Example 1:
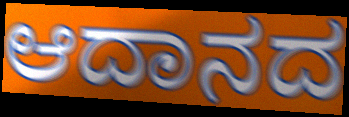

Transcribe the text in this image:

ಆದಾನದ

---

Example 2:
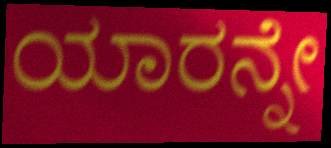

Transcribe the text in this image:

ಯಾರನ್ನೇ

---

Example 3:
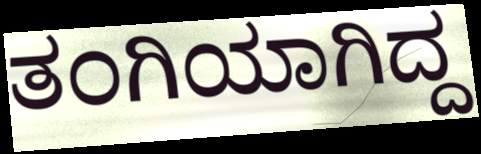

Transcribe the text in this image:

ತಂಗಿಯಾಗಿದ್ದ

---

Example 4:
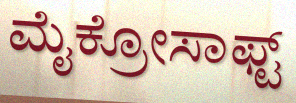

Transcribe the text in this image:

ಮೈಕ್ರೋಸಾಫ್ಟ್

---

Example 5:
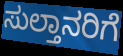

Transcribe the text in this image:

ಸುಲ್ತಾನರಿಗೆ